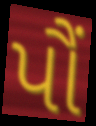
પૌં